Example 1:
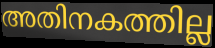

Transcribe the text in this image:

അതിനകത്തില്ല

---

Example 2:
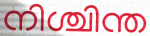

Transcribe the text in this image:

നിശ്ചിന്ത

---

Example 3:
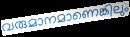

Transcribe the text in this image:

വരുമാനമാണെങ്കിലും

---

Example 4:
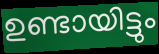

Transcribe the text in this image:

ഉണ്ടായിട്ടും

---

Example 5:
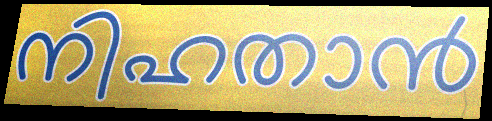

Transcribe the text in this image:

നിഹതാൻ